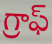
గ్రాఫ్